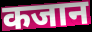
कजान